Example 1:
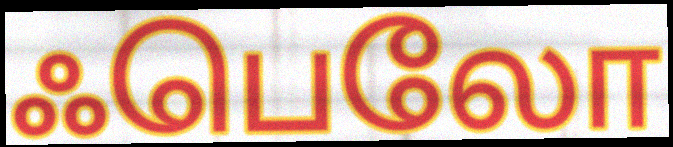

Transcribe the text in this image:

ஃபெலோ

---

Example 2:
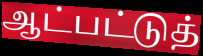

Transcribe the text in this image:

ஆட்பட்டுத்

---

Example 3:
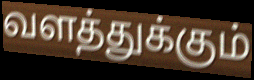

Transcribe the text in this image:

வளத்துக்கும்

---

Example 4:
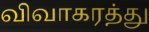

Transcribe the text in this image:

விவாகரத்து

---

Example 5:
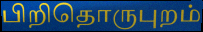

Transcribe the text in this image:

பிறிதொருபுறம்